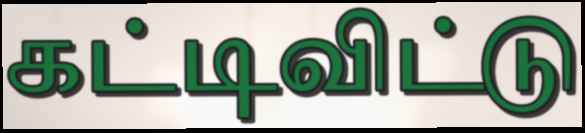
கட்டிவிட்டு